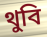
থুবি